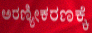
ಅರಣ್ಯೀಕರಣಕ್ಕೆ